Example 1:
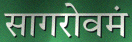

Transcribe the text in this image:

सागरोवमं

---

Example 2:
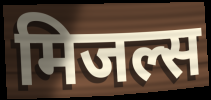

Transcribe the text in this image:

मिजल्स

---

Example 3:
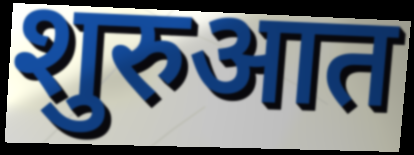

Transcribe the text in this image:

शुरुआत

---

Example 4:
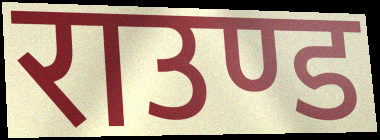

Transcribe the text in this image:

राउण्ड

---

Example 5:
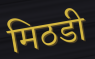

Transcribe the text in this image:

मिठडी